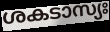
ശകടാസ്യഃ